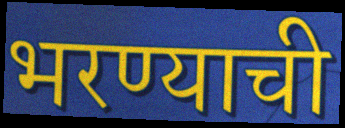
भरण्याची